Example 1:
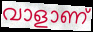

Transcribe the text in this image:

വാളാണ്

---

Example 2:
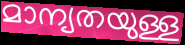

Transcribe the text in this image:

മാന്യതയുള്ള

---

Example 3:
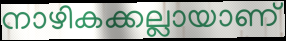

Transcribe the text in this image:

നാഴികക്കല്ലായാണ്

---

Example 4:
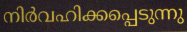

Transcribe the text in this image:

നിർവഹിക്കപ്പെടുന്നു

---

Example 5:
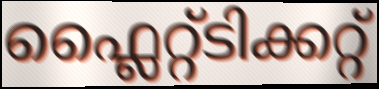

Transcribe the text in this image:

ഫ്ലൈറ്റ്ടിക്കറ്റ്